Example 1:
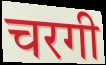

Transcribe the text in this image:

चरगी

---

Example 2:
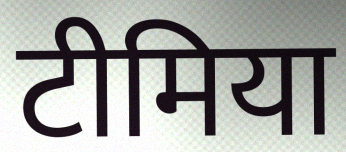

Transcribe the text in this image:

टीमिया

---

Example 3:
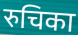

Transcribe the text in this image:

रुचिका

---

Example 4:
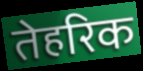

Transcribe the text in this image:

तेहरिक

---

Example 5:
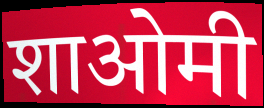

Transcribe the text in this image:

शाओमी